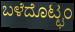
ಬಳೆದೊಟ್ಟಂ